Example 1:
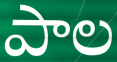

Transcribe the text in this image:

పాల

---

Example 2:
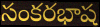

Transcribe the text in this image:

సంకరభాష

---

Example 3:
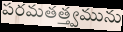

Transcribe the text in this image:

పరమతత్త్వమును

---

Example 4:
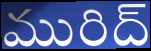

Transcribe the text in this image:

మురిద్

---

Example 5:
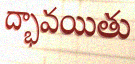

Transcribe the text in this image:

ద్భావయితు